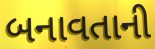
બનાવતાની